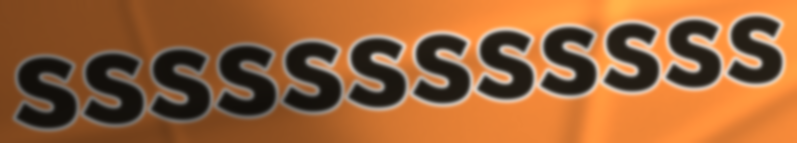
ssssssssssss